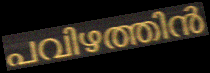
പവിഴത്തിൻ